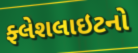
ફ્લેશલાઇટનો